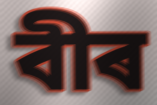
বীৰ